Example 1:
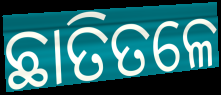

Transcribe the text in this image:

ଛାତିତଳେ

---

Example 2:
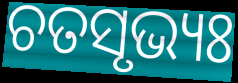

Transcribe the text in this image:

ଚତସୃଭ୍ୟଃ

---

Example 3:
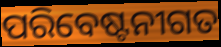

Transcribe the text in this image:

ପରିବେଷ୍ଟନୀଗତ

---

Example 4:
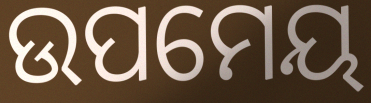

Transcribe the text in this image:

ଉପମେୟ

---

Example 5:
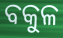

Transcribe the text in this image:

ବକୁଳ